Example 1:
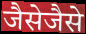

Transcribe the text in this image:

जैसेजैसे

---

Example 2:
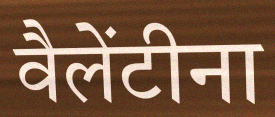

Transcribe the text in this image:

वैलेंटीना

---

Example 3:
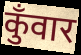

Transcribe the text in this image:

कुँवार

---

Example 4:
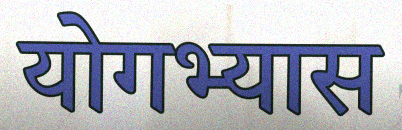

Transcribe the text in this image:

योगभ्यास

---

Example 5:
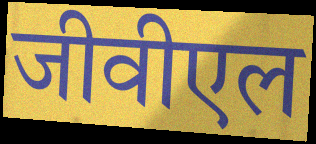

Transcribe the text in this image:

जीवीएल